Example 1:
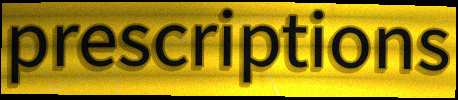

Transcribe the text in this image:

prescriptions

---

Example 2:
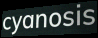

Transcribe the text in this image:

cyanosis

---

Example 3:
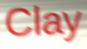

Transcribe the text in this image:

Clay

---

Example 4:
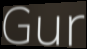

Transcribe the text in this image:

Gur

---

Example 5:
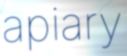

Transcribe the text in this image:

apiary